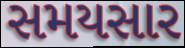
સમયસાર